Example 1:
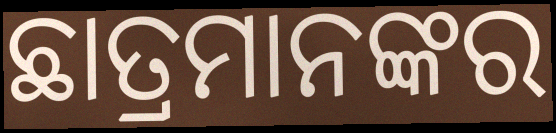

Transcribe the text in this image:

ଛାତ୍ରମାନଙ୍କର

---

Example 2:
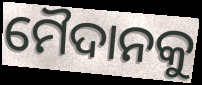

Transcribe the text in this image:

ମୈଦାନକୁ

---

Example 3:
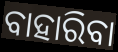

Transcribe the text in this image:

ବାହାରିବା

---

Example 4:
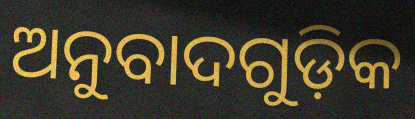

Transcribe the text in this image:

ଅନୁବାଦଗୁଡ଼ିକ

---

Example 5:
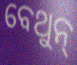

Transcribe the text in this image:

ବେଥୁନ୍